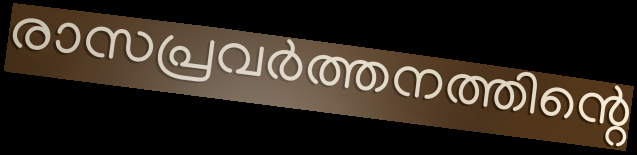
രാസപ്രവർത്തനത്തിന്റെ